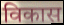
विकास